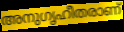
അനുഗൃഹീതരാണ്